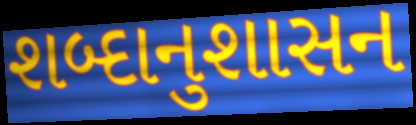
શબ્દાનુશાસન